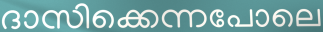
ദാസിക്കെന്നപോലെ